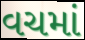
વચમાં